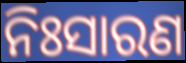
ନିଃସାରଣ